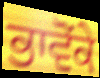
ਭਾਵੋਂਕੇ